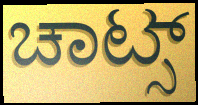
ಚಾಟ್ಸ್